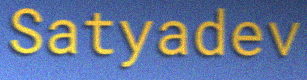
Satyadev